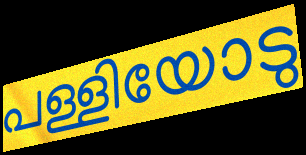
പള്ളിയോടു